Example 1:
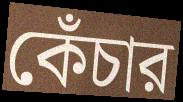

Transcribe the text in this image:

কেঁচার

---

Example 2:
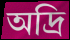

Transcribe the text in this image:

অদ্রি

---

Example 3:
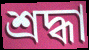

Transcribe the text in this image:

শ্রদ্ধা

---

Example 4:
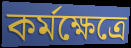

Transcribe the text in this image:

কর্মক্ষেত্রে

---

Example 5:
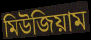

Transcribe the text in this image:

মিউজিয়াম